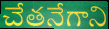
చేతనేగాని